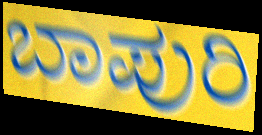
ಬಾಪುರಿ